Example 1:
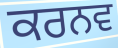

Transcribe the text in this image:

ਕਰਨਵ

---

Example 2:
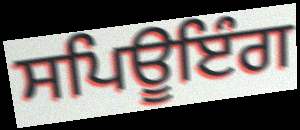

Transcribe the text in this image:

ਸਪਿਊਇੰਗ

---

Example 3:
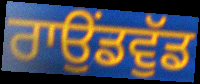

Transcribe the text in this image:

ਰਾਉਂਡਵੁੱਡ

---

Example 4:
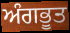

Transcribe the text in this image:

ਅੰਗਭੂਤ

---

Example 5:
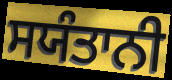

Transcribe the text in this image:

ਸਯੰਤਾਨੀ